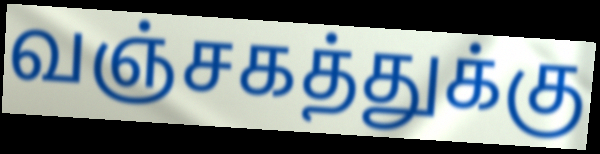
வஞ்சகத்துக்கு